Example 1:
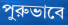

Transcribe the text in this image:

পুরুভাবে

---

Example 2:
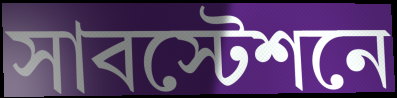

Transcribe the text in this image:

সাবস্টেশনে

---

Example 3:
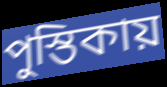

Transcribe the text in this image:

পুস্তিকায়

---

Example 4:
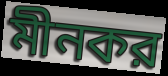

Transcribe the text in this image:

মীনকর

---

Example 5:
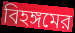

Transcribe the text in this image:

বিহঙ্গমের